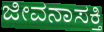
ಜೀವನಾಸಕ್ತಿ